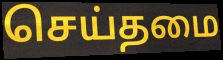
செய்தமை